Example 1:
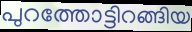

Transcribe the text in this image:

പുറത്തോട്ടിറങ്ങിയ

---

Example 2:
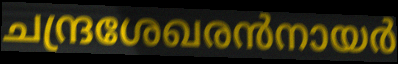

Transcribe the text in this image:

ചന്ദ്രശേഖരൻനായർ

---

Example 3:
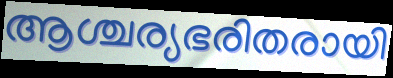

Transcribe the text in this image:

ആശ്ചര്യഭരിതരായി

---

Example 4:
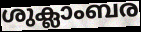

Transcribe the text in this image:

ശുക്ലാംബര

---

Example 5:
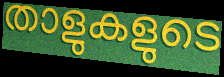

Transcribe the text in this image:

താളുകളുടെ